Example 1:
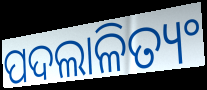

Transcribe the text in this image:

ପଦଲାଳିତ୍ୟଂ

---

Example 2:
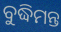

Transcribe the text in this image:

ବୁଦ୍ଧିମନ୍ତ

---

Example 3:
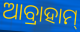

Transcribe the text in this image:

ଆବ୍ରାହାମ୍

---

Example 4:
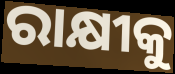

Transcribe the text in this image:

ରାକ୍ଷୀକୁ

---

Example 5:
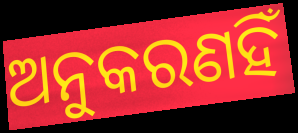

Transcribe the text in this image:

ଅନୁକରଣହିଁ